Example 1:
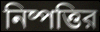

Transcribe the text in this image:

নিষ্পত্তির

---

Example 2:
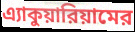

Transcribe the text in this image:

এ্যাকুয়ারিয়ামের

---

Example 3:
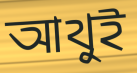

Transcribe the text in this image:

আথুই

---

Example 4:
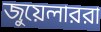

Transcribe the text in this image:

জুয়েলাররা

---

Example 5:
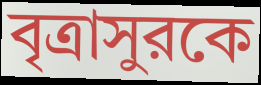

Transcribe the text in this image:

বৃত্রাসুরকে